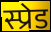
स्प्रेड